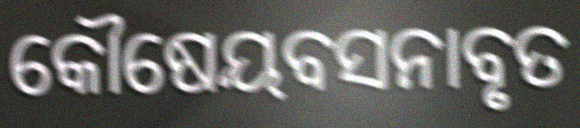
କୌଷେୟବସନାବୃତ